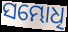
ସମ୍ଭୋଧି